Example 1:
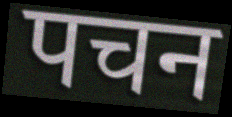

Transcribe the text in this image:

पचन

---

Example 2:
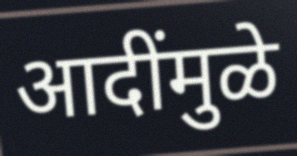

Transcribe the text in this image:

आदींमुळे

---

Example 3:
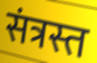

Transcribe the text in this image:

संत्रस्त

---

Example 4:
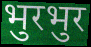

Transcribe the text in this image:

भुरभुर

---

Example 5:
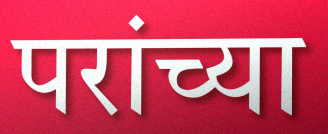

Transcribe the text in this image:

परांच्या